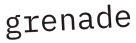
grenade